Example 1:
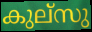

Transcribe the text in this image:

കുല്സു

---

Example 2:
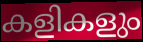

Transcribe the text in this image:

കളികളും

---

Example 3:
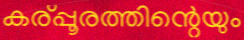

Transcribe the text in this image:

കര്പ്പൂരത്തിന്റെയും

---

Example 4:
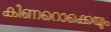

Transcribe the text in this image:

കിണറൊക്കെയും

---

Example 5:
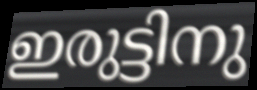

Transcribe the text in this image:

ഇരുട്ടിനു